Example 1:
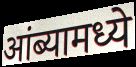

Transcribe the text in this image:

आंब्यामध्ये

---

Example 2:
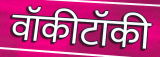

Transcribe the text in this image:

वॉकीटॉकी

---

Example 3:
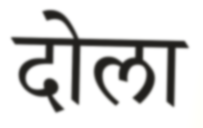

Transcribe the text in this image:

दोला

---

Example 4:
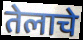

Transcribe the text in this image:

तेलाचे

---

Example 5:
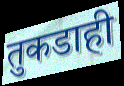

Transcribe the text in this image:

तुकडाही